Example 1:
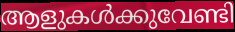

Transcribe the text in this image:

ആളുകൾക്കുവേണ്ടി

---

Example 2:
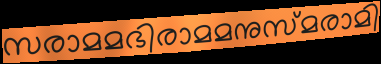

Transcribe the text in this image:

സരാമമഭിരാമമനുസ്മരാമി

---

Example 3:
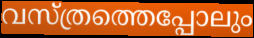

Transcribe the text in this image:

വസ്ത്രത്തെപ്പോലും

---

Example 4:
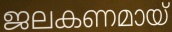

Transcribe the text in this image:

ജലകണമായ്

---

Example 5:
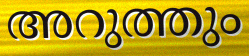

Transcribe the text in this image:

അറുത്തും